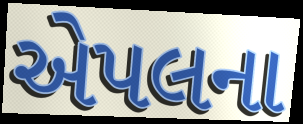
એપલના